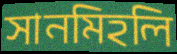
সানমিহলি